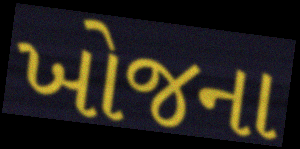
ખોજના